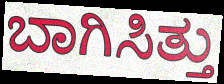
ಬಾಗಿಸಿತ್ತು